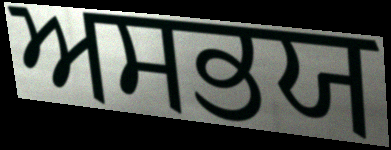
ਅਸਭਯ